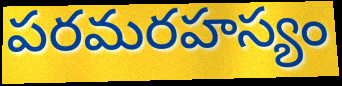
పరమరహస్యం